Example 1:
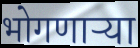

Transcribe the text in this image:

भोगणाऱ्या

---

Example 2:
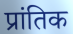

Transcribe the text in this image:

प्रांतिक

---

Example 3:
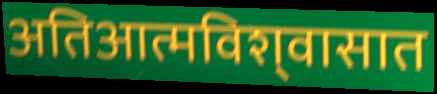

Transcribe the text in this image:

अतिआत्मविश्वासात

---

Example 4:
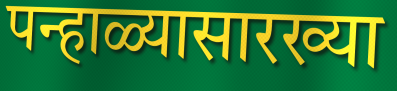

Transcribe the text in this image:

पन्हाळ्यासारख्या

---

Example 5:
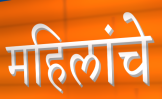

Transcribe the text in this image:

महिलांचे